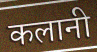
कलानी